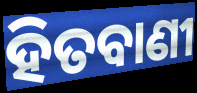
ହିତବାଣୀ